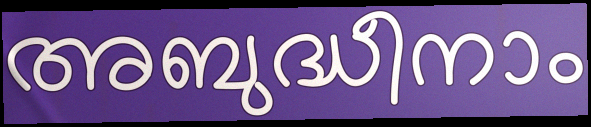
അബുദ്ധീനാം